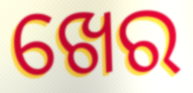
ଖେର